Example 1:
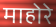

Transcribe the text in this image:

माहोरे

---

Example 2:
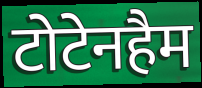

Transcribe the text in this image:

टोटेनहैम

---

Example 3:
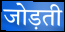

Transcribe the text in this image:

जोड़ती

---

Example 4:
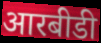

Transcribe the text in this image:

आरबीडी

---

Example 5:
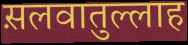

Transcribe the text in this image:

स़लवातुल्लाह